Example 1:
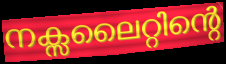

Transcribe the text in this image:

നക്സലൈറ്റിന്റെ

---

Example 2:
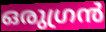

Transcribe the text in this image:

ഒരുഗ്രൻ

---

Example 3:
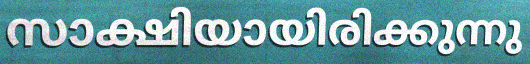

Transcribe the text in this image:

സാക്ഷിയായിരിക്കുന്നു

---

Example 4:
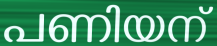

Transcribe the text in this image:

പണിയന്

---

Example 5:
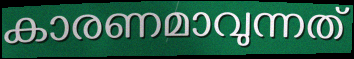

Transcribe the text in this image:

കാരണമാവുന്നത്